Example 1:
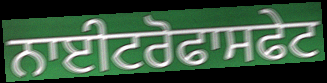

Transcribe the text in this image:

ਨਾਈਟਰੋਫਾਸਫੇਟ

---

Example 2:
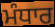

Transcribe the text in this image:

ਮੰਧਾਰ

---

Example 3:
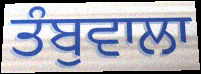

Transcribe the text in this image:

ਤੰਬੁਵਾਲਾ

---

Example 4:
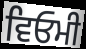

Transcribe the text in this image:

ਵਿਓਮੀ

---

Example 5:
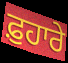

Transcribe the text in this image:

ਫ਼ੁਹਾਰੇ